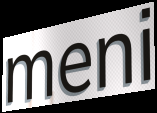
meni